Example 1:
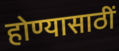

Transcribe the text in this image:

होण्यासाठीं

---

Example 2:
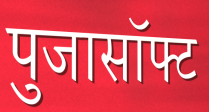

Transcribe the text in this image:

पुजासॉफ्ट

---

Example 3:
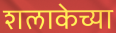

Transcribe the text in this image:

शलाकेच्या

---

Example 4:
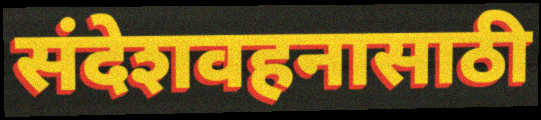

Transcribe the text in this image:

संदेशवहनासाठी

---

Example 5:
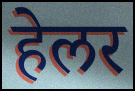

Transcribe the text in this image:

हेलर